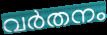
വർതനം